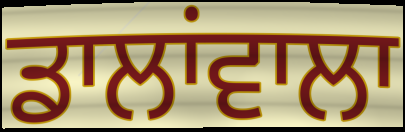
ਡਾਲਾਂਵਾਲਾ